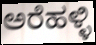
ಅರೆಹಳ್ಳಿ